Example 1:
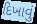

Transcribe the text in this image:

દિખાવું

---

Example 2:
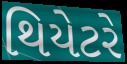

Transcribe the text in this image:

થિયેટરે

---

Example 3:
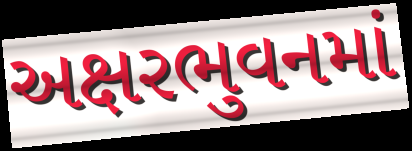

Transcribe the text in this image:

અક્ષરભુવનમાં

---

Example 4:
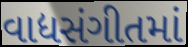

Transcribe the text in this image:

વાદ્યસંગીતમાં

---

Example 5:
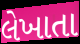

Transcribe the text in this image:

લેખાતા